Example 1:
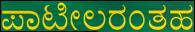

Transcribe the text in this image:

ಪಾಟೀಲರಂತಹ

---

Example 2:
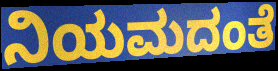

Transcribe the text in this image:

ನಿಯಮದಂತೆ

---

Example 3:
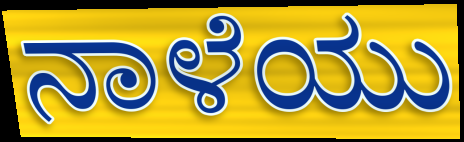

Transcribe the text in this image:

ನಾಳೆಯು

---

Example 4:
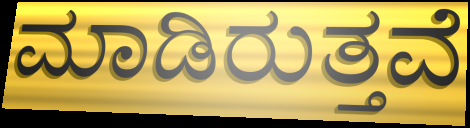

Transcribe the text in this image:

ಮಾಡಿರುತ್ತವೆ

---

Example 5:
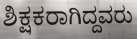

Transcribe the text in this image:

ಶಿಕ್ಷಕರಾಗಿದ್ದವರು